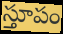
స్తూపం